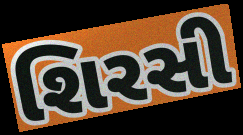
શિરસી